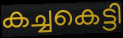
കച്ചകെട്ടി